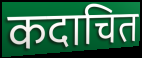
कदाचित